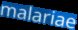
malariae